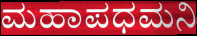
ಮಹಾಪಧಮನಿ